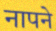
नापने